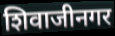
शिवाजीनगर